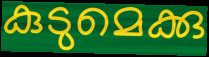
കുടുമെക്കു